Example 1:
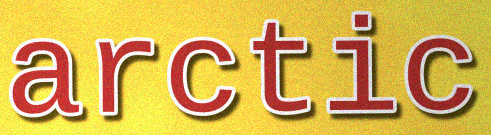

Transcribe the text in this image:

arctic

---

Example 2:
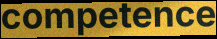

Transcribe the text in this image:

competence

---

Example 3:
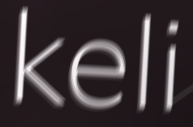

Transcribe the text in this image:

keli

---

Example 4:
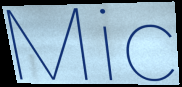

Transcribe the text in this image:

Mic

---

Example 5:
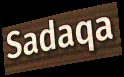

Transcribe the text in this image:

Sadaqa